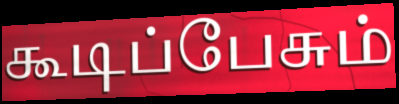
கூடிப்பேசும்